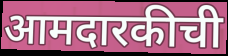
आमदारकीची